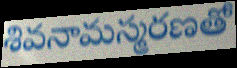
శివనామస్మరణతో